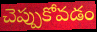
చెప్పుకోవడం